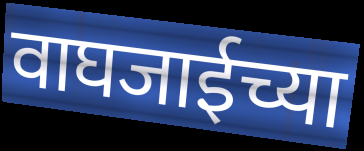
वाघजाईच्या